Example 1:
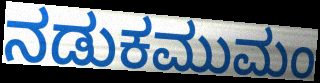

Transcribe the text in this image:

ನಡುಕಮುಮಂ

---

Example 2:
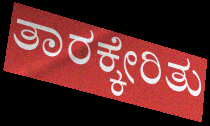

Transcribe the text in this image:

ತಾರಕ್ಕೇರಿತು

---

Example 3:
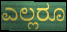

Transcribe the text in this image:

ಎಲ್ಲರೂ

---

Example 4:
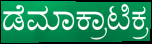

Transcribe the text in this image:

ಡೆಮಾಕ್ರಾಟಿಕ್ರ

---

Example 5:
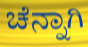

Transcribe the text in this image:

ಚೆನ್ನಾಗಿ